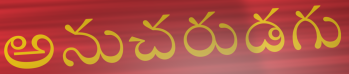
అనుచరుడగు